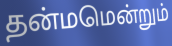
தன்மமென்றும்